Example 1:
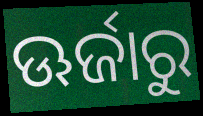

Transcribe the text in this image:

ଊର୍ଜାରୁ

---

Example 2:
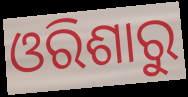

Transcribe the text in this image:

ଓରିଶାରୁ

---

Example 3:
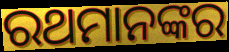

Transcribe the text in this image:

ରଥମାନଙ୍କର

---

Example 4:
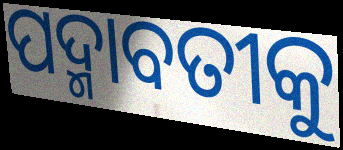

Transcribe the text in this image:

ପଦ୍ମାବତୀକୁ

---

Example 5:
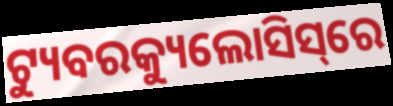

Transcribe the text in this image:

ଟ୍ୟୁବରକ୍ୟୁଲୋସିସ୍‌ରେ